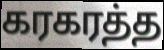
கரகரத்த